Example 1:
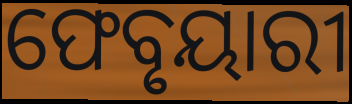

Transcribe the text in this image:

ଫେବୃୟାରୀ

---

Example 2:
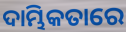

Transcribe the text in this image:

ଦାମ୍ଭିକତାରେ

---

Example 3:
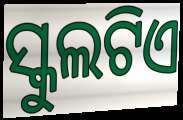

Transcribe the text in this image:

ସ୍କୁଲଟିଏ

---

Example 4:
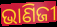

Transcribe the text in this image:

ଭାଣିଜୀ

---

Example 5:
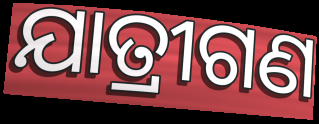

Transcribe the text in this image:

ଯାତ୍ରୀଗଣ